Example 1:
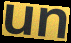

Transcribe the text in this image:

un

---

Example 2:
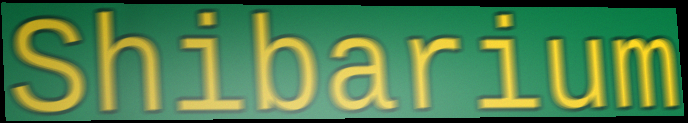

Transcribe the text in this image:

Shibarium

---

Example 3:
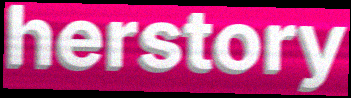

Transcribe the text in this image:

herstory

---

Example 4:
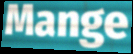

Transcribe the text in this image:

Mange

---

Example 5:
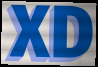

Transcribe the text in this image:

XD